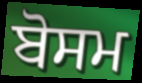
ਬੋਸਮ